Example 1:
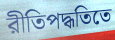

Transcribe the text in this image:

রীতিপদ্ধতিতে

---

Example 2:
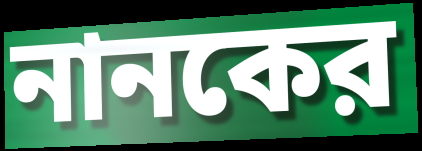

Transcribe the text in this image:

নানকের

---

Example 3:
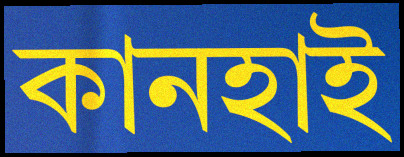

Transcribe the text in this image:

কানহাই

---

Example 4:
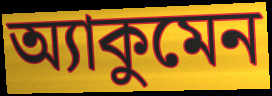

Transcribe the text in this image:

অ্যাকুমেন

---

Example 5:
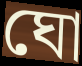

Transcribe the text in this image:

ঘো